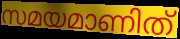
സമയമാണിത്